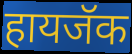
हायजॅक